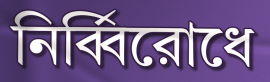
নির্ব্বিরোধে